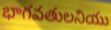
భాగవతులనియు